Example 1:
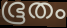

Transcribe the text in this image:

ഭൂതം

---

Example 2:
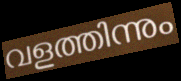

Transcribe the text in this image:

വളത്തിന്നും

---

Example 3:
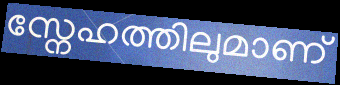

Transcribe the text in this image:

സ്നേഹത്തിലുമാണ്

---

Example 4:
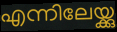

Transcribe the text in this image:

എന്നിലേയ്ക്കു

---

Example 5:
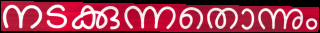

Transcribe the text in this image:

നടക്കുന്നതൊന്നും